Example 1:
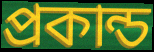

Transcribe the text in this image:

প্রকান্ড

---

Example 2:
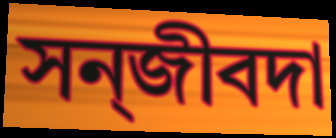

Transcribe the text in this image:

সন্জীবদা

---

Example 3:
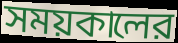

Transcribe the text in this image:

সময়কালের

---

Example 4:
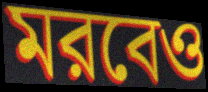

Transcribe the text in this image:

মরবেও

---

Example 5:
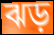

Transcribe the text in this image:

ঝড়